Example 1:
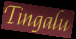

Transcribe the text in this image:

Tingalu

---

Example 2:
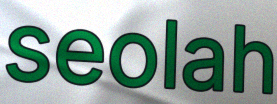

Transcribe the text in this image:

seolah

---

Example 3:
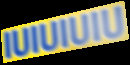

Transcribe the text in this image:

IUIUIUIU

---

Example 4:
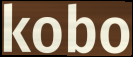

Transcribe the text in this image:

kobo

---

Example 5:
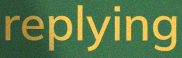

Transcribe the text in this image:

replying